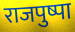
राजपुष्पा